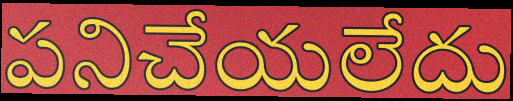
పనిచేయలేదు